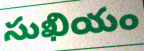
సుఖియం